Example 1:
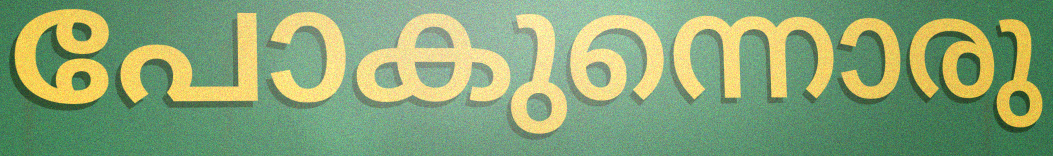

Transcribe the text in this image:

പോകുന്നൊരു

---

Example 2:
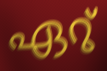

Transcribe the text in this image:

ഏറു്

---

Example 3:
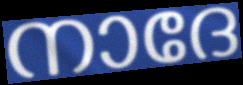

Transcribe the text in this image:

നാദേ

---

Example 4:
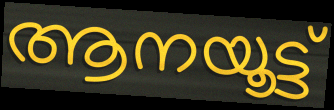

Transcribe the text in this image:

ആനയൂട്ട്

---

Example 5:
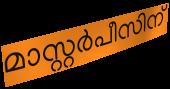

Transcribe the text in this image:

മാസ്റ്റർപീസിന്